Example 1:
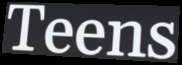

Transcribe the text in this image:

Teens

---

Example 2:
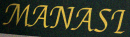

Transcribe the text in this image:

MANASI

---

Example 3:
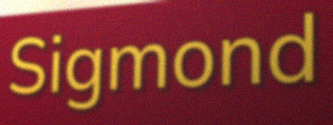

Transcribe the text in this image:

Sigmond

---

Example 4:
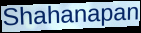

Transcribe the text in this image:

Shahanapan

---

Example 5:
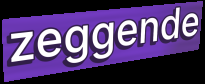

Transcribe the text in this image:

zeggende